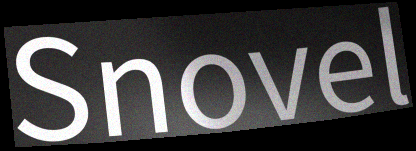
Snovel